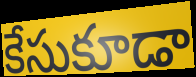
కేసుకూడా